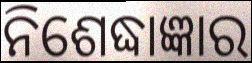
ନିଶେଦ୍ଧାଜ୍ଞାର